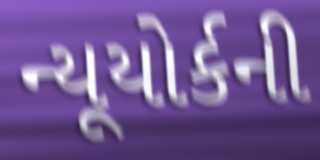
ન્યૂયોર્કની